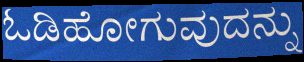
ಓಡಿಹೋಗುವುದನ್ನು